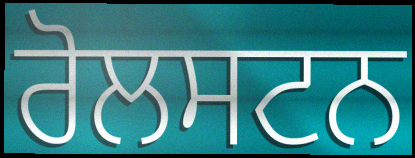
ਰੋਲਸਟਨ